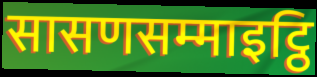
सासणसम्माइट्ठि